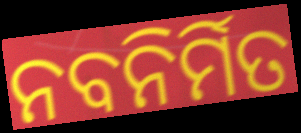
ନବନିର୍ମିତ